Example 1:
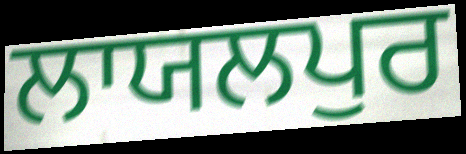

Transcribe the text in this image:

ਲਾਯਲਪੁਰ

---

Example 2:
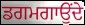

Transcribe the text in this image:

ਡਗਮਗਾਉਂਦੇ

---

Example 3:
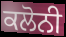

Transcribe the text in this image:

ਕਲੋਨੀ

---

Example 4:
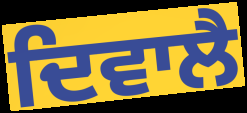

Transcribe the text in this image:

ਦਿਵਾਲੈ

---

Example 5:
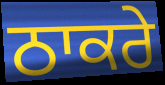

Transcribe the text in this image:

ਠਾਕਰੇ